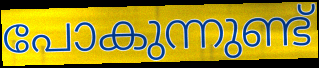
പോകുന്നുണ്ട്